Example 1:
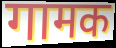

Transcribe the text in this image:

गामक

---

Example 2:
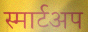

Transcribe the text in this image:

स्मार्टअप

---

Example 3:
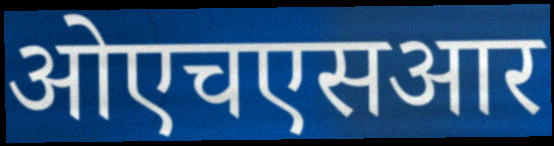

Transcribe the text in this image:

ओएचएसआर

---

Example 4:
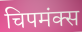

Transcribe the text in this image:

चिपमंक्स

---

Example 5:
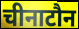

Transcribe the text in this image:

चीनाटौन